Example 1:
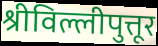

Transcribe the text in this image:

श्रीविल्लीपुत्तूर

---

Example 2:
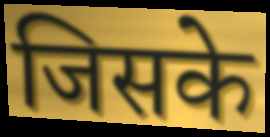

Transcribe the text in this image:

जिसके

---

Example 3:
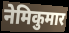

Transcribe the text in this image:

नेमिकुमार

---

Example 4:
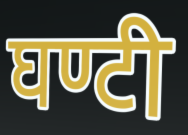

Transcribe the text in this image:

घण्टी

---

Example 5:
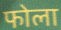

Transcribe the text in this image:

फोला